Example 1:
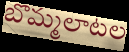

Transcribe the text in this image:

బొమ్మలాటల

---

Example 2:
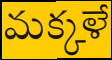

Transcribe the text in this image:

మక్కళే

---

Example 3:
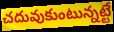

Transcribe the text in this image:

చదువుకుంటున్నట్టే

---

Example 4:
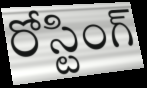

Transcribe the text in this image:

రోస్టింగ్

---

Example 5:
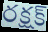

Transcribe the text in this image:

రక్షక్